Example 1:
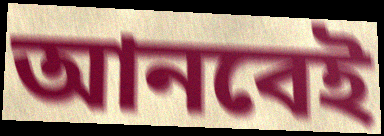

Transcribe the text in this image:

আনবেই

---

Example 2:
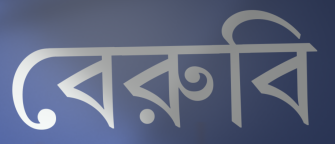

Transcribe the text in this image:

বেরুবি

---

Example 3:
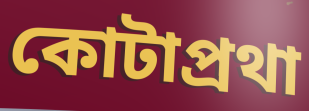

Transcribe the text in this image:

কোটাপ্রথা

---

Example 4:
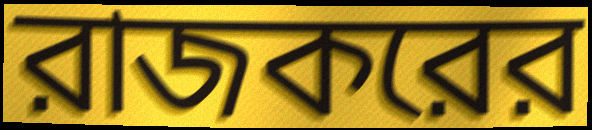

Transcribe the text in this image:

রাজকরের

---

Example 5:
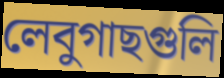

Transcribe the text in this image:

লেবুগাছগুলি